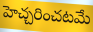
హెచ్చరించటమే